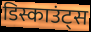
डिस्काउंट्स